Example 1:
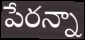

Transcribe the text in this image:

పేరన్నా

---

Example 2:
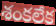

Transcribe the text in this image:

శంకలేక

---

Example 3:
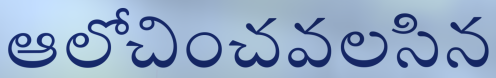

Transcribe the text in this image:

ఆలోచించవలసిన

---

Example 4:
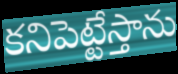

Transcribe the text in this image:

కనిపెట్టేస్తాను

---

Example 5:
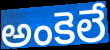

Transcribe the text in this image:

అంకెలే